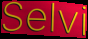
Selvi